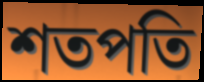
শতপতি